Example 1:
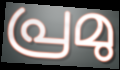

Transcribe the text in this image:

പ്രമു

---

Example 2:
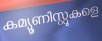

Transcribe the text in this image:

കമ്യൂണിസ്റ്റുകളെ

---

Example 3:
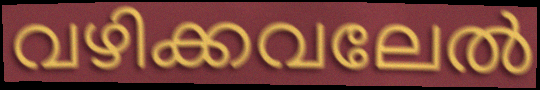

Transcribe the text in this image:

വഴിക്കവലേൽ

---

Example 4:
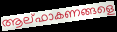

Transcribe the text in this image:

ആല്ഫാകണങ്ങളെ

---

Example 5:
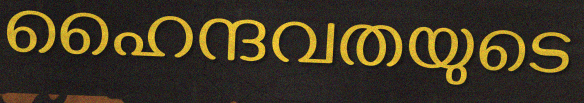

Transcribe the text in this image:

ഹൈന്ദവതയുടെ